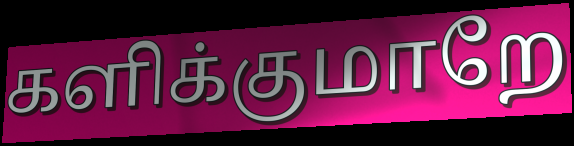
களிக்குமாறே